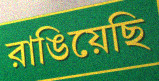
রাঙিয়েছি